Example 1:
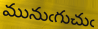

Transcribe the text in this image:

మునుఁగుచుఁ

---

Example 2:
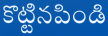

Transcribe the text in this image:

కొట్టినపిండి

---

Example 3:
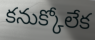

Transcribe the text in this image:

కనుక్కోలేక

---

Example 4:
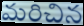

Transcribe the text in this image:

మరిచిన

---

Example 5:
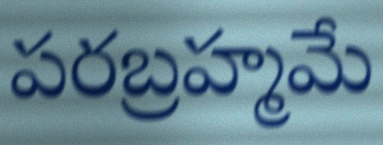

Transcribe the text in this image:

పరబ్రహ్మమే